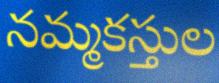
నమ్మకస్తుల